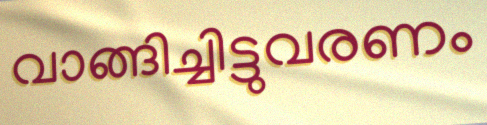
വാങ്ങിച്ചിട്ടുവരണം